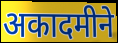
अकादमीने